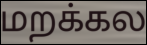
மறக்கல